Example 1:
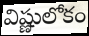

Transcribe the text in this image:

విష్ణులోకం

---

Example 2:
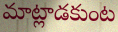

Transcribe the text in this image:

మాట్లాడకుంట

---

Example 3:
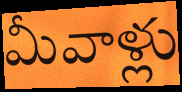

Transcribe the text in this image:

మీవాళ్లు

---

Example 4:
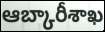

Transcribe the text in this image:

ఆబ్కారీశాఖ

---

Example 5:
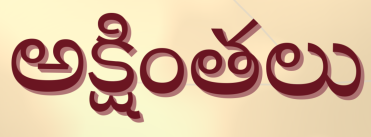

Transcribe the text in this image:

అక్షింతలు